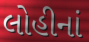
લોહીનાં